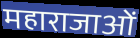
महाराजाओं